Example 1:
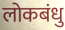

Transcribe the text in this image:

लोकबंधु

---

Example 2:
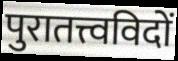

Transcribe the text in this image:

पुरातत्त्वविदों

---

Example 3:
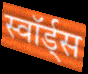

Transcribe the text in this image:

स्‍वॉर्ड्स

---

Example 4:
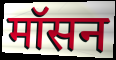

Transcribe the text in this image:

मॉसन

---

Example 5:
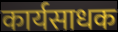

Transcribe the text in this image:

कार्यसाधक